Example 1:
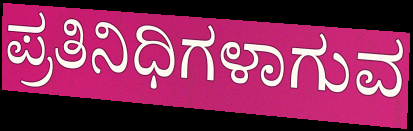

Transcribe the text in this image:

ಪ್ರತಿನಿಧಿಗಳಾಗುವ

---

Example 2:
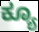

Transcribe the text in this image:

ಕ್ಯೂ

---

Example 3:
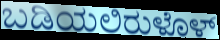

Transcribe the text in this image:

ಬಡಿಯಲಿರುಳೊಳ್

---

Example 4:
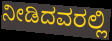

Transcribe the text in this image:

ನೀಡಿದವರಲ್ಲಿ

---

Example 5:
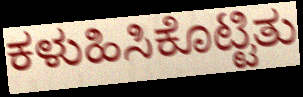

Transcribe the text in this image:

ಕಳುಹಿಸಿಕೊಟ್ಟಿತು